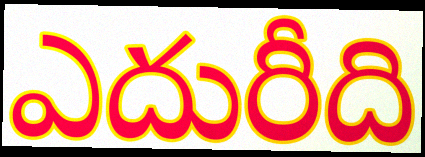
ఎదురీది